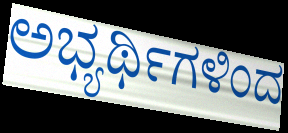
ಅಭ್ಯರ್ಥಿಗಳಿಂದ